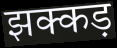
झक्कड़